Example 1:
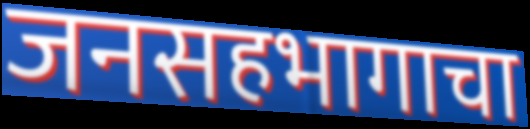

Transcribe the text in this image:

जनसहभागाचा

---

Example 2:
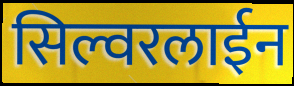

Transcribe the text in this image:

सिल्वरलाईन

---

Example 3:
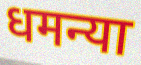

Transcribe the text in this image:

धमन्या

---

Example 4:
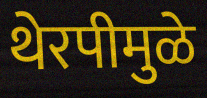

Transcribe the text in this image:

थेरपीमुळे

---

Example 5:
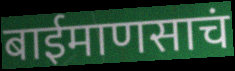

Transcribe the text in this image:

बाईमाणसाचं